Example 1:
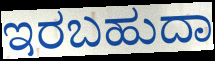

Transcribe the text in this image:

ಇರಬಹುದಾ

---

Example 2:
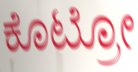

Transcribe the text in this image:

ಕೊಟ್ರೋ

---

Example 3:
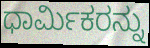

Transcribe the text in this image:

ಧಾರ್ಮಿಕರನ್ನು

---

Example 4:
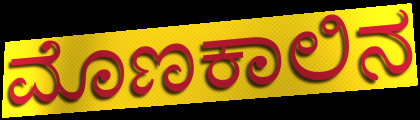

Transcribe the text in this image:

ಮೊಣಕಾಲಿನ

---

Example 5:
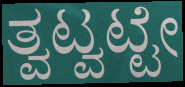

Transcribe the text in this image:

ತ್ವಟ್ವಟ್ಟೇ